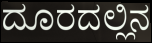
ದೂರದಲ್ಲಿನ